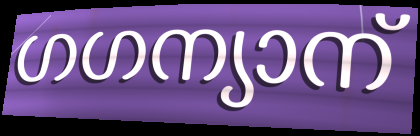
ഗഗന്യാന്